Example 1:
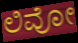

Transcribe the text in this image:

ಲಿವೋ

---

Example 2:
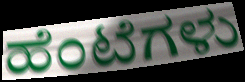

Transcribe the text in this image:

ಹೆಂಟೆಗಳು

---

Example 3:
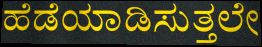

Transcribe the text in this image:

ಹೆಡೆಯಾಡಿಸುತ್ತಲೇ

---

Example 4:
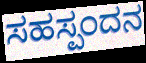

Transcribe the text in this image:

ಸಹಸ್ಪಂದನ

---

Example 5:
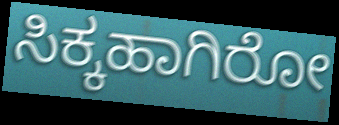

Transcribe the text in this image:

ಸಿಕ್ಕಹಾಗಿರೋ